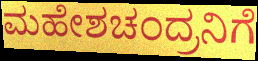
ಮಹೇಶಚಂದ್ರನಿಗೆ